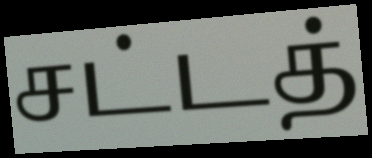
சட்டத்